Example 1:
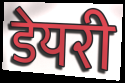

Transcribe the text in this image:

डेयरी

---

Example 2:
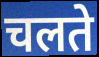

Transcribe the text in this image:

चलते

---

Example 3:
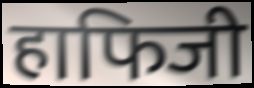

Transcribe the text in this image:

हाफिजी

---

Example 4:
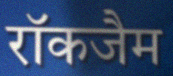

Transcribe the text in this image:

रॉकजैम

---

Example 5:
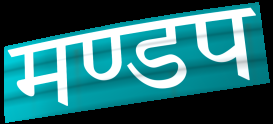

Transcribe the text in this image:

मण्‍डप